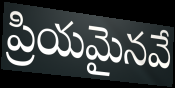
ప్రియమైనవే